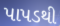
પાપડથી